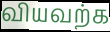
வியவற்க